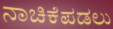
ನಾಚಿಕೆಪಡಲು